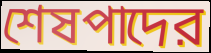
শেষপাদের